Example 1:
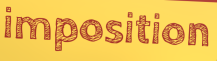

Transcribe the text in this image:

imposition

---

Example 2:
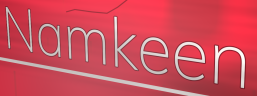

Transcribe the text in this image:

Namkeen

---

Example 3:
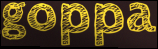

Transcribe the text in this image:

goppa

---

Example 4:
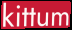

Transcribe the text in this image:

kittum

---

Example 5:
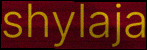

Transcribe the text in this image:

shylaja